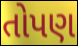
તોપણ